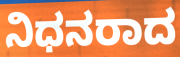
ನಿಧನರಾದ